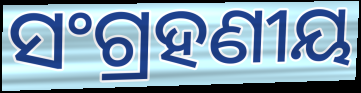
ସଂଗ୍ରହଣୀୟ